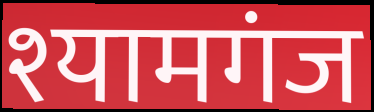
श्यामगंज